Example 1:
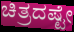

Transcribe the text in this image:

ಚಿತ್ರದಷ್ಟೇ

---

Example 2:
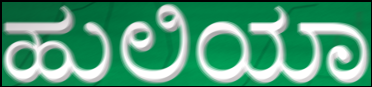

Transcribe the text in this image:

ಹುಲಿಯಾ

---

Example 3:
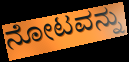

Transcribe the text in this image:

ನೋಟವನ್ನು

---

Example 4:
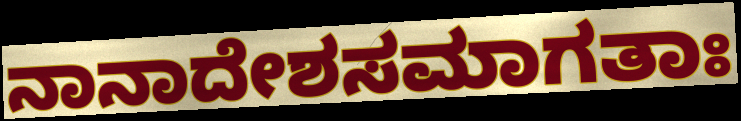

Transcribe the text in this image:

ನಾನಾದೇಶಸಮಾಗತಾಃ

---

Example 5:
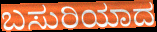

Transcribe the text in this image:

ಬಸುರಿಯಾದ